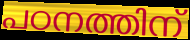
പഠനത്തിന്